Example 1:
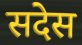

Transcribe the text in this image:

सदेस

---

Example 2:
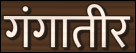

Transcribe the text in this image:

गंगातीर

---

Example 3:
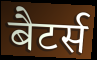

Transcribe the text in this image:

बैटर्स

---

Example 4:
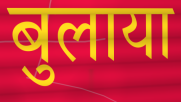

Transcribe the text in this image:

बुलाया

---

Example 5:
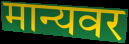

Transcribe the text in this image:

मान्यवर